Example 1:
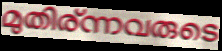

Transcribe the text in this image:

മുതിര്ന്നവരുടെ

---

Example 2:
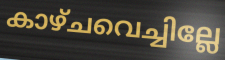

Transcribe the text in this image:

കാഴ്ചവെച്ചില്ലേ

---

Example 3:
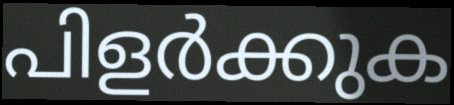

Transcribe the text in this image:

പിളർക്കുക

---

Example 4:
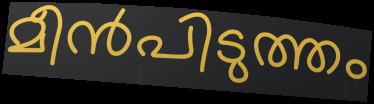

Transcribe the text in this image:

മീൻപിടുത്തം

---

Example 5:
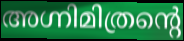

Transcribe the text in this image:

അഗ്നിമിത്രന്റെ